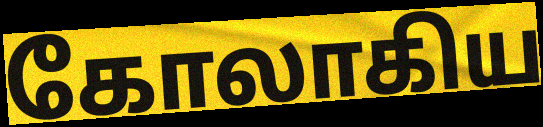
கோலாகிய